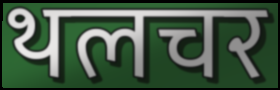
थलचर